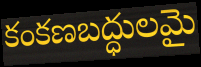
కంకణబద్ధులమై